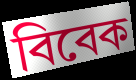
বিবেক